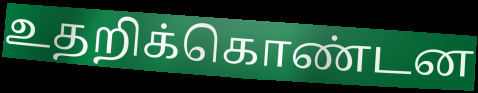
உதறிக்கொண்டன